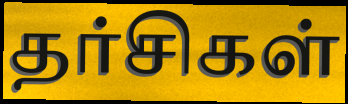
தர்சிகள்